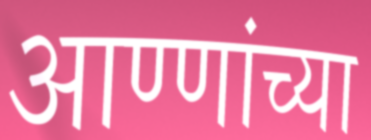
आण्णांच्या